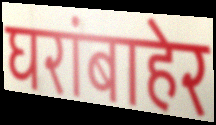
घरांबाहेर